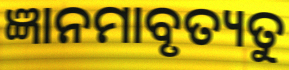
ଜ୍ଞାନମାବୃତ୍ୟତୁ